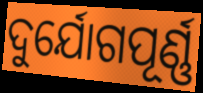
ଦୁର୍ଯୋଗପୂର୍ଣ୍ଣ